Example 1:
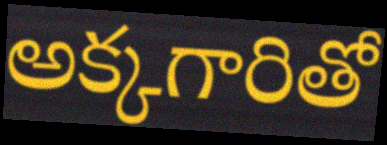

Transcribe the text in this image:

అక్కగారితో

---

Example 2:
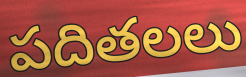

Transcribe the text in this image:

పదితలలు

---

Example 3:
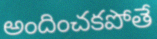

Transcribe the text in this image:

అందించకపోతే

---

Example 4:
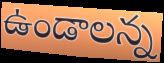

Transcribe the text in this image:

ఉండాలన్న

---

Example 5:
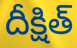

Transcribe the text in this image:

దీక్షిత్